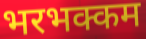
भरभक्कम